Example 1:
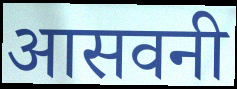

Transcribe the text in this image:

आसवनी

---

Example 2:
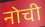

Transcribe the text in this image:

नोची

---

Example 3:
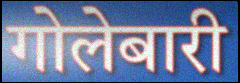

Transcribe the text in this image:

गोलेबारी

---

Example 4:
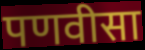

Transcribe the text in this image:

पणवीसा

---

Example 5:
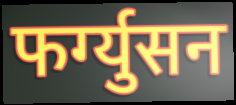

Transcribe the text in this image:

फर्ग्युसन